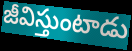
జీవిస్తుంటాడు